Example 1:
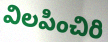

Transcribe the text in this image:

విలపించిరి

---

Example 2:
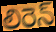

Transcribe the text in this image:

లిరెన్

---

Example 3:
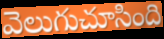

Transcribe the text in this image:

వెలుగుచూసింది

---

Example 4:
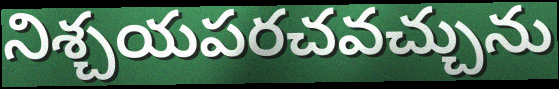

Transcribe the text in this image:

నిశ్చయపరచవచ్చును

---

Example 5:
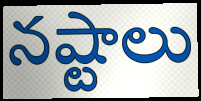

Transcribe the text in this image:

నష్టాలు